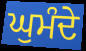
ਘੁਮੰਦੇ